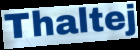
Thaltej